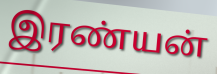
இரண்யன்